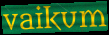
vaikum